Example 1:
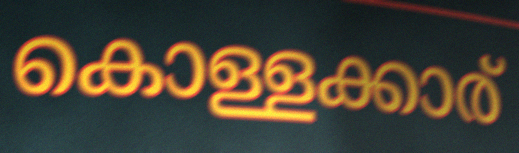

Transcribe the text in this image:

കൊള്ളക്കാര്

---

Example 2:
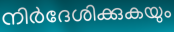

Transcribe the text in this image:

നിർദേശിക്കുകയും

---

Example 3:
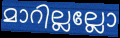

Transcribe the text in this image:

മാറില്ലല്ലോ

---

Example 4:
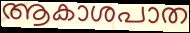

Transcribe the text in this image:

ആകാശപാത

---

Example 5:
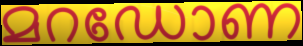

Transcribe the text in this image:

മറഡോണ